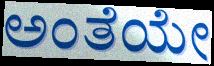
ಅಂತೆಯೇ